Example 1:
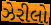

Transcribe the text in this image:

ઝેરીલો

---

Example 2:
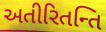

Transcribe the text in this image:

અતીરિતન્તિ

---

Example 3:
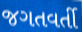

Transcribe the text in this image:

જગતવર્તી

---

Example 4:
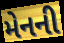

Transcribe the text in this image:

મેનની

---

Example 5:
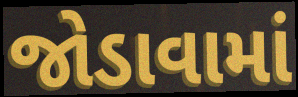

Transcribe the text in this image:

જોડાવામાં